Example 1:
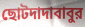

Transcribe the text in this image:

ছোটদাদাবাবুর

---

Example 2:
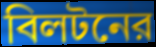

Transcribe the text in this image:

বিলটনের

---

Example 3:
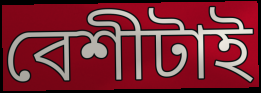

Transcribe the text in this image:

বেশীটাই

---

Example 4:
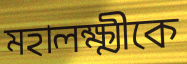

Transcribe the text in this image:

মহালক্ষ্মীকে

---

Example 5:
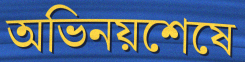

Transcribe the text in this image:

অভিনয়শেষে